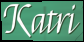
Katri